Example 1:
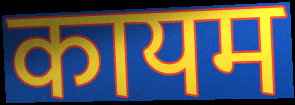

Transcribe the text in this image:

कायम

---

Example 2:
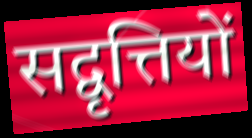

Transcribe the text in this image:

सद्वृत्तियों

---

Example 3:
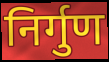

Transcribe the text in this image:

निर्गुण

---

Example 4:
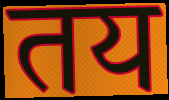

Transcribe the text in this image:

तय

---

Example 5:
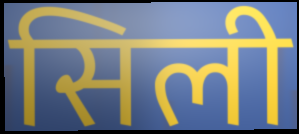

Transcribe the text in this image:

सिली